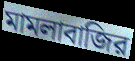
মামলাবাজির